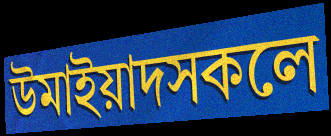
উমাইয়াদসকলে